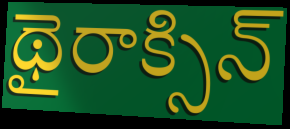
థైరాక్సిన్